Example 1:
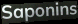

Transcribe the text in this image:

Saponins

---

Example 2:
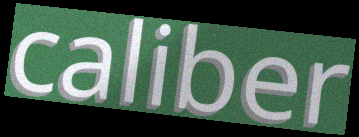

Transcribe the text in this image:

caliber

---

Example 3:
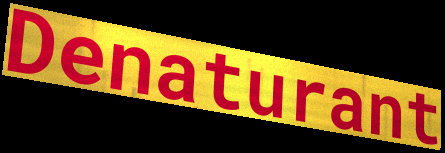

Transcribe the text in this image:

Denaturant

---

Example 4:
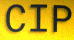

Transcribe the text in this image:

CIP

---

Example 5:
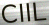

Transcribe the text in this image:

CIIL